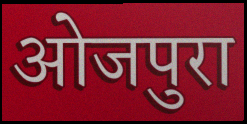
ओजपुरा